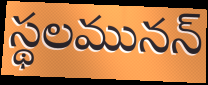
స్థలమునన్